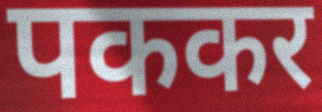
पककर